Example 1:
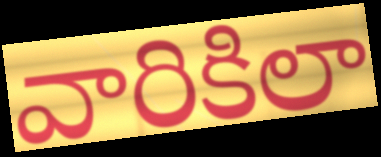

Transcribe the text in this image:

వారికిలా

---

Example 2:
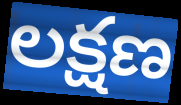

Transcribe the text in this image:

లక్షణ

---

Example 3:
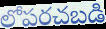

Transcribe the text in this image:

లోపరచబడి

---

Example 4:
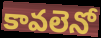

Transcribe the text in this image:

కావలెనో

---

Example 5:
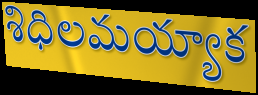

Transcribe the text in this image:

శిధిలమయ్యాక